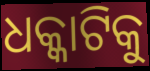
ଧକ୍କାଟିକୁ